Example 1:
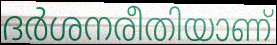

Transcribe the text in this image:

ദർശനരീതിയാണ്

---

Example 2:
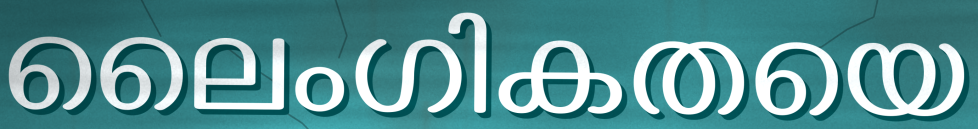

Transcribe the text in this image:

ലൈംഗികതയെ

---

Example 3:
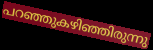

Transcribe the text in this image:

പറഞ്ഞുകഴിഞ്ഞിരുന്നു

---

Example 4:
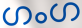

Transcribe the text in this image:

ഗംഗ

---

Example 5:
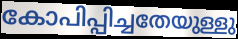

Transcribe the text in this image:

കോപിപ്പിച്ചതേയുള്ളു